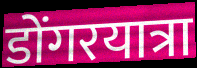
डोंगरयात्रा